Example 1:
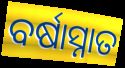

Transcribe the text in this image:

ବର୍ଷାସ୍ନାତ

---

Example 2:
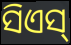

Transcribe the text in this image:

ସିଏସ୍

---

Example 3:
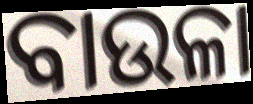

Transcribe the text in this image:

ବାଉଳା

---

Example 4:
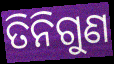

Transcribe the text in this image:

ତିନିଗୁଣ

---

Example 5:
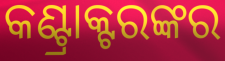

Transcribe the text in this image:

କଣ୍ଟ୍ରାକ୍ଟରଙ୍କର